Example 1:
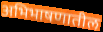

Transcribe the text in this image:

अभिभाषणातील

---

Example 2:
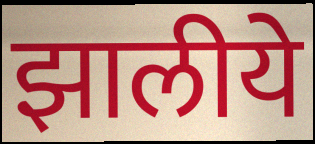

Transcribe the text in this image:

झालीये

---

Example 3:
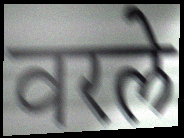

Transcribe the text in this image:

वरले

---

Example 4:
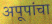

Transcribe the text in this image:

अपूपांचा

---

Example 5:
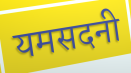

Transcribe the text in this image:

यमसदनी